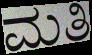
ಮತಿ